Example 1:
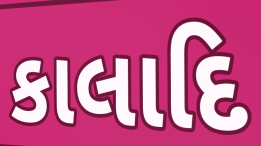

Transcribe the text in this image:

કાલાદિ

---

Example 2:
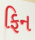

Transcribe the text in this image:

ફિન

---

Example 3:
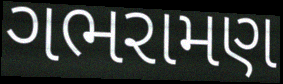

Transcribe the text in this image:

ગભરામણ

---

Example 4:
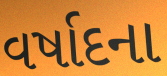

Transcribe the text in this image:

વર્ષાદના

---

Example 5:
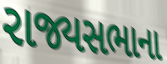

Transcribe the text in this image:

રાજ્યસભાના